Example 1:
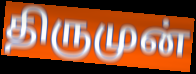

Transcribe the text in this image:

திருமுன்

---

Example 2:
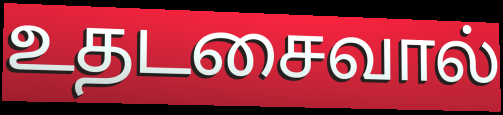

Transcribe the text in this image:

உதடசைவால்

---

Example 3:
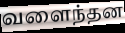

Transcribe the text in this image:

வளைந்தன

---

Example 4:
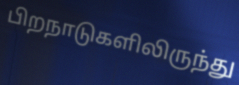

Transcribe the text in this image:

பிறநாடுகளிலிருந்து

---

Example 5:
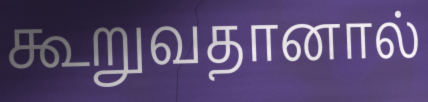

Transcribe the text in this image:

கூறுவதானால்